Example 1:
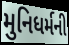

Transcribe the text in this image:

મુનિધર્મની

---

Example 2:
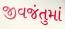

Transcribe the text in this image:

જીવજંતુમાં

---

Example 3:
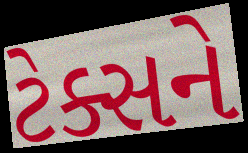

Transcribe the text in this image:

ટેક્સને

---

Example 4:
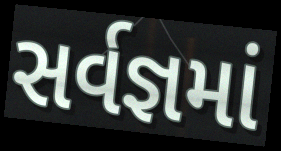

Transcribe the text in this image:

સર્વજ્ઞમાં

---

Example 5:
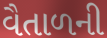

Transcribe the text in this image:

વૈતાળની